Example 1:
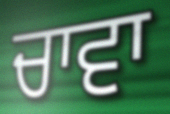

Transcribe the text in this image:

ਚਾਵਾ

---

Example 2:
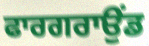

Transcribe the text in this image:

ਫਾਰਗਰਾਉਂਡ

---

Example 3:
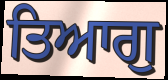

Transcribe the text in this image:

ਤਿਆਗੁ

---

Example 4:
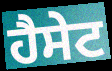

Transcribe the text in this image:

ਹੈਸੇਟ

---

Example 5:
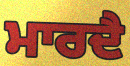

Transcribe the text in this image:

ਮਾਰਦੈ